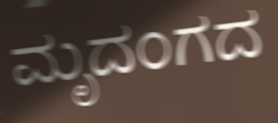
ಮೃದಂಗದ